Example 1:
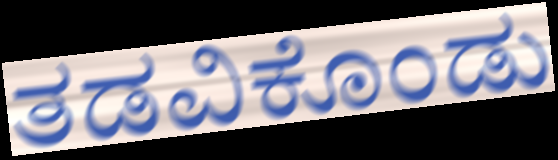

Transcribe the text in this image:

ತಡವಿಕೊಂಡು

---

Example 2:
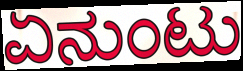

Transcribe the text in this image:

ಏನುಂಟು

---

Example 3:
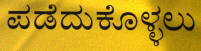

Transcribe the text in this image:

ಪಡೆದುಕೊಳ್ಳಲು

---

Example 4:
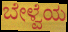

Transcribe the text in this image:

ಬೇಳ್ವೆಯ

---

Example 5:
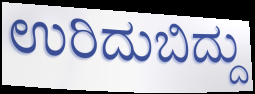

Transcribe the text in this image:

ಉರಿದುಬಿದ್ದು